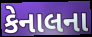
કેનાલના